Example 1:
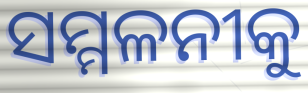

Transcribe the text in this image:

ସମ୍ମଳନୀକୁ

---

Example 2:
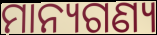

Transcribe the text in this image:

ମାନ୍ୟଗଣ୍ୟ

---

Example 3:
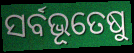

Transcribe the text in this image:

ସର୍ବଭୂତେଷୁ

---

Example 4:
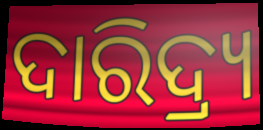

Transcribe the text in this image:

ଦାରିଦ୍ର୍ୟ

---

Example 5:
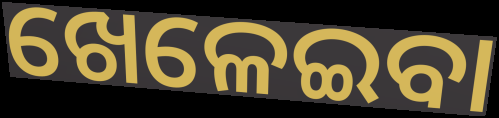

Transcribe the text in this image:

ଖେଳେଇବା